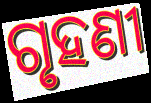
ଗୃହଣୀ